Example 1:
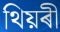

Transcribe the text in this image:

থিয়ৰী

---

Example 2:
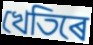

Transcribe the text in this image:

খেতিৰে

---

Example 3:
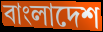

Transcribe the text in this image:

বাংলাদেশ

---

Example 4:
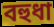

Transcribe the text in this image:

বহুধা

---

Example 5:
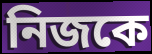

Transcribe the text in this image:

নিজকে